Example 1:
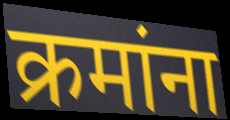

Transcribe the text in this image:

क्रमांना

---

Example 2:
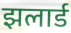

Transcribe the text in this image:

झलार्ड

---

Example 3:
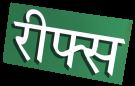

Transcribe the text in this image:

रीफ्स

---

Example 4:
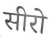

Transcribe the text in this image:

सीरो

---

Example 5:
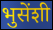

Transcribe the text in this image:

भुसेंशी